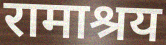
रामाश्रय